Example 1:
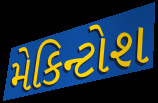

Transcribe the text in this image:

મેકિન્ટોશ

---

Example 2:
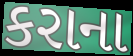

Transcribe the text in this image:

કરાના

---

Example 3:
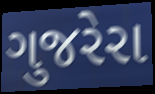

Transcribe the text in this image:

ગુજરેરા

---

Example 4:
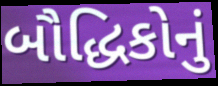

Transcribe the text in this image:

બૌદ્ધિકોનું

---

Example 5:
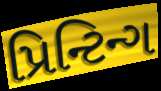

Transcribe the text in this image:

પ્રિન્ટિન્ગ